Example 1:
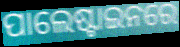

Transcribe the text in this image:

ପାଲେଷ୍ଟାଇନରେ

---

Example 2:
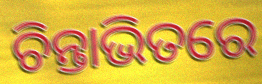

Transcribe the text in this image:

ଚିନ୍ତାଭିତରେ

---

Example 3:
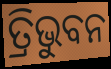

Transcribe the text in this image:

ତ୍ରିଭୁବନ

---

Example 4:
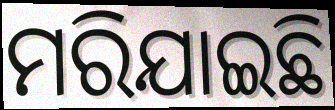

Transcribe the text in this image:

ମରିଯାଇଛି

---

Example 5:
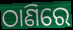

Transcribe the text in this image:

ଠାଣିରେ